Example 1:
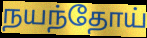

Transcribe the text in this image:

நயந்தோய்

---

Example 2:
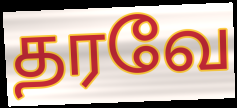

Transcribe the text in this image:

தரவே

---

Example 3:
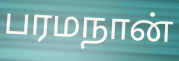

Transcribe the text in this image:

பரமநான்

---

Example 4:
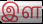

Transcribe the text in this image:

இள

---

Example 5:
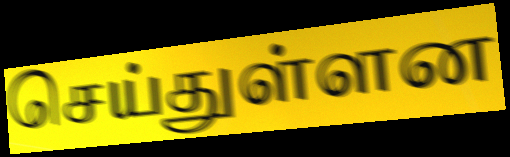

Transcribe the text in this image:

செய்துள்ளன